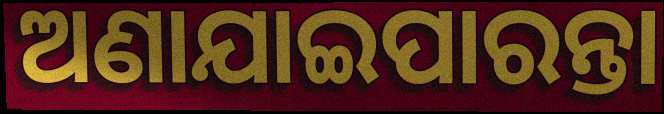
ଅଣାଯାଇପାରନ୍ତା